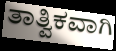
ತಾತ್ವಿಕವಾಗಿ